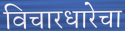
विचारधारेचा